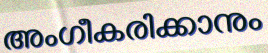
അംഗീകരിക്കാനും